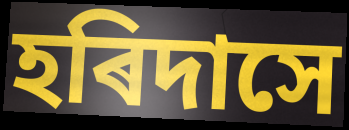
হৰিদাসে